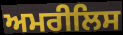
ਅਮਰੀਲਿਸ